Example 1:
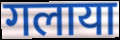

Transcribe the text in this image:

गलाया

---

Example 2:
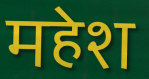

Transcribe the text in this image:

महेश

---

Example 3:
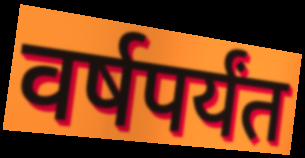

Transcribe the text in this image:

वर्षपर्यंत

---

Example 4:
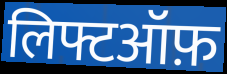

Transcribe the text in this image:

लिफ्टऑफ़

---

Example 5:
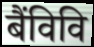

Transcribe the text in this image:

बैंविवि